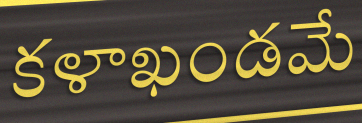
కళాఖండమే